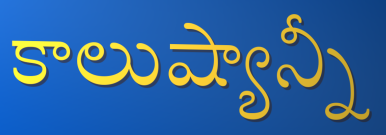
కాలుష్యాన్నీ